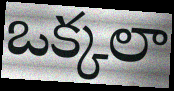
ఒక్కలా